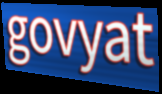
govyat